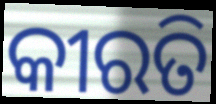
କୀରତି